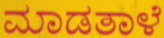
ಮಾಡತಾಳೆ